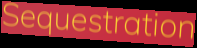
Sequestration